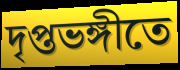
দৃপ্তভঙ্গীতে